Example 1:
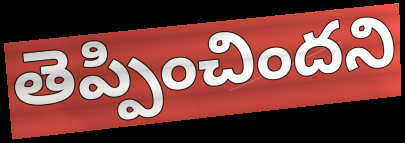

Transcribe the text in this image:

తెప్పించిందని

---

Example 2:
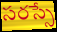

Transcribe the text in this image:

సరస్సే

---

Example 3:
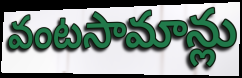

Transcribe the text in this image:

వంటసామాన్లు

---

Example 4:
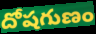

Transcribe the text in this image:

దోషగుణం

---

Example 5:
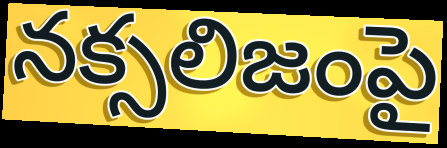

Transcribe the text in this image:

నక్సలిజంపై